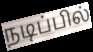
நடிப்பில்